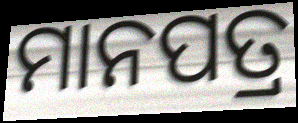
ମାନପତ୍ର